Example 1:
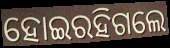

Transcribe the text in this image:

ହୋଇରହିଗଲେ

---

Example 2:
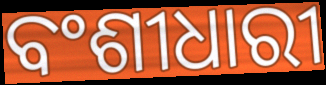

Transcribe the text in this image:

ବଂଶୀଧାରୀ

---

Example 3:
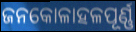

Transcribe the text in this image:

ଜନକୋଳାହଳପୂର୍ଣ୍ଣ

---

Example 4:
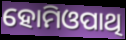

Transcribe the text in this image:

ହୋମିଓପାଥି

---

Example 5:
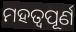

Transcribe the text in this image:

ମହତ୍ୱପୂର୍ଣ